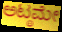
ಅಟ್ಠಮೇ